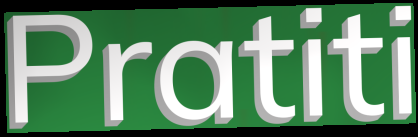
Pratiti